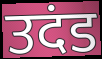
उदंड